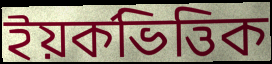
ইয়র্কভিত্তিক